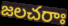
జలచరాః